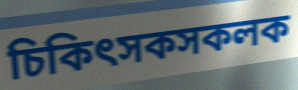
চিকিৎসকসকলক